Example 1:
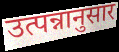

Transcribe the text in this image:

उत्पन्नानुसार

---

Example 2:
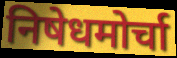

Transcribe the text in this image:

निषेधमोर्चा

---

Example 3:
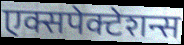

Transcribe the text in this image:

एक्सपेक्टेशन्स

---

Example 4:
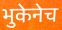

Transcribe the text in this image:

भुकेनेच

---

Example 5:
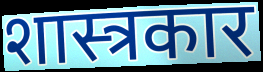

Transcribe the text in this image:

शास्त्रकार